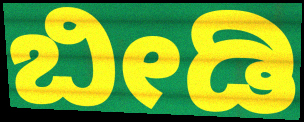
ಬೀಡಿ